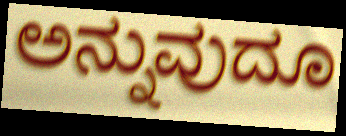
ಅನ್ನುವುದೂ